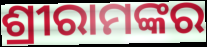
ଶ୍ରୀରାମଙ୍କର